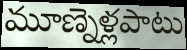
మూణ్నెళ్లపాటు